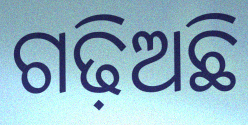
ଗଢ଼ିଅଛି